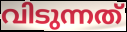
വിടുന്നത്